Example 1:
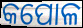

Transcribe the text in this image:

କପୋଳ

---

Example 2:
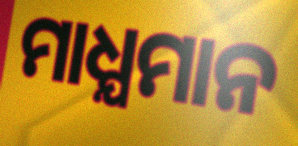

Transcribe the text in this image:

ମାଧ୍ଯମାନ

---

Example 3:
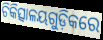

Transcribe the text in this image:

ଚିକିତ୍ସାଳୟଗୁଡ଼ିକରେ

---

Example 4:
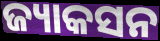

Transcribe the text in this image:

ଜ୍ୟାକସନ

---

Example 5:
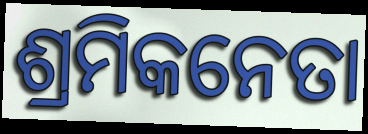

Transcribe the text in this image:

ଶ୍ରମିକନେତା